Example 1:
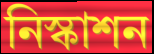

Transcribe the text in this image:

নিস্কাশন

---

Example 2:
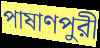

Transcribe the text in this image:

পাষাণপুরী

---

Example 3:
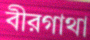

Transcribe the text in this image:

বীরগাথা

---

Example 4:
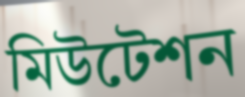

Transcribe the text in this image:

মিউটেশন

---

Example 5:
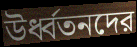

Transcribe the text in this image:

উর্ধ্বতনদের